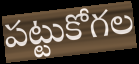
పట్టుకోగల